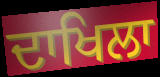
ਦਾਖਿਲਾ